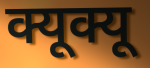
क्यूक्यू